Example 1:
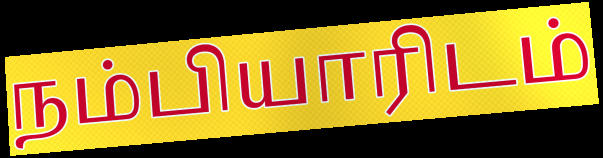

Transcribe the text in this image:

நம்பியாரிடம்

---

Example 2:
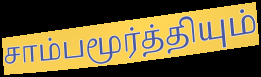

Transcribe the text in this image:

சாம்பமூர்த்தியும்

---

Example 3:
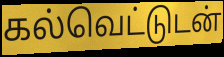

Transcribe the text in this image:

கல்வெட்டுடன்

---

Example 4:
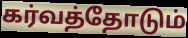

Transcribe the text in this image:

கர்வத்தோடும்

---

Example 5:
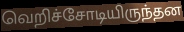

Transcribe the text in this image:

வெறிச்சோடியிருந்தன